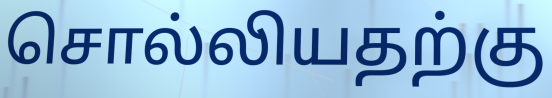
சொல்லியதற்கு